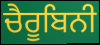
ਚੈਰੂਬਿਨੀ